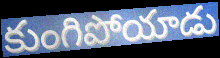
కుంగిపోయాడు